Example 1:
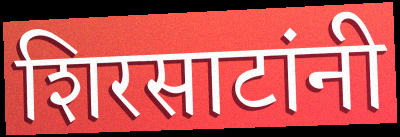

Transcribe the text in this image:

शिरसाटांनी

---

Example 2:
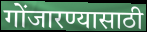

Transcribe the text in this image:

गोंजारण्यासाठी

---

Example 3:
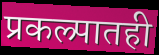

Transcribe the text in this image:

प्रकल्पातही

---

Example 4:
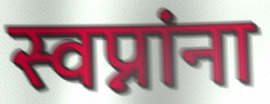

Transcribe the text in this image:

स्वप्नांना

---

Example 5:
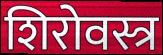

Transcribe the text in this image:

शिरोवस्त्र